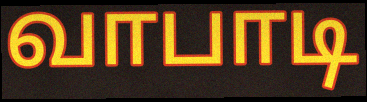
வாபாடி